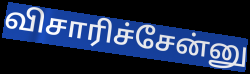
விசாரிச்சேன்னு